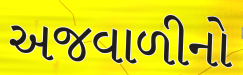
અજવાળીનો